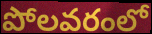
పోలవరంలో